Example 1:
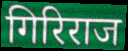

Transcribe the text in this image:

गिरिराज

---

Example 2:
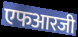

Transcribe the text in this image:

एफआरजी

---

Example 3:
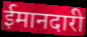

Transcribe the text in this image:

ईमानदारी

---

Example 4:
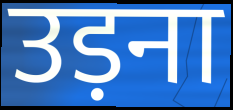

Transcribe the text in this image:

उड़ना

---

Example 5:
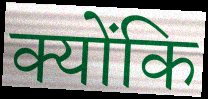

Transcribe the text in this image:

क्योंकि